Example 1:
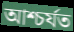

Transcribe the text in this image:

আশ্চৰ্যত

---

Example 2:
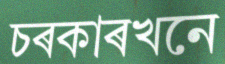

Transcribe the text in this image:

চৰকাৰখনে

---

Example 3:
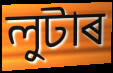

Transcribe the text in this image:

লুটাৰ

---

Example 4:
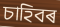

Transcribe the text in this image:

চাহিবৰ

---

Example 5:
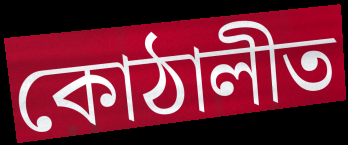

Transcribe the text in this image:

কোঠালীত